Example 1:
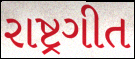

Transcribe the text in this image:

રાષ્ટ્રગીત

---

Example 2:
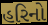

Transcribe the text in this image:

હરિનો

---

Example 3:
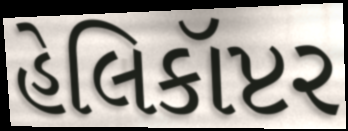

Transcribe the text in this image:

હેલિકૉપ્ટર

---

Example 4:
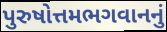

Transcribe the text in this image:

પુરુષોત્તમભગવાનનું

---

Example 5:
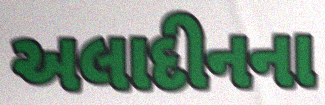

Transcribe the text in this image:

અલાદીનના